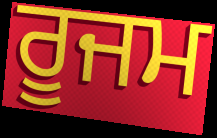
ਰੂਜਮ